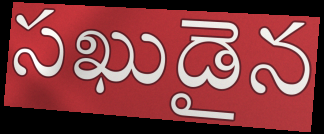
సఖుడైన